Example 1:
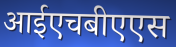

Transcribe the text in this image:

आईएचबीएएस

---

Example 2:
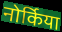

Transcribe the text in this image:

नोर्किया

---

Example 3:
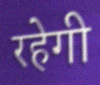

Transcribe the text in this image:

रहेगी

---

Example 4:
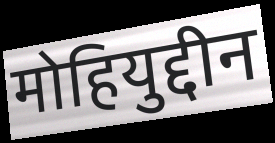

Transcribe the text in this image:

मोहियुद्दीन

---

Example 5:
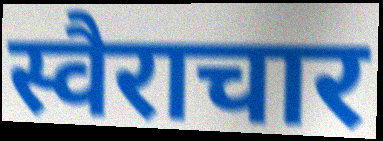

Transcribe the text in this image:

स्वैराचार